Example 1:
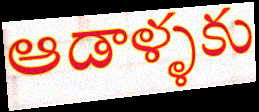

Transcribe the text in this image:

ఆడాళ్ళకు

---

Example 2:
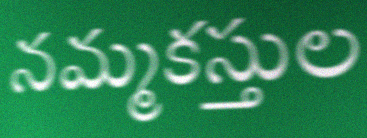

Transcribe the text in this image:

నమ్మకస్తుల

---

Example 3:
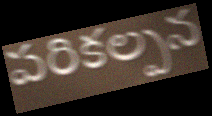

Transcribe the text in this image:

పరికల్పన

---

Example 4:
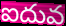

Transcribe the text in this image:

ఐదువ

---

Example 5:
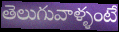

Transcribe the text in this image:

తెలుగువాళ్ళంటే